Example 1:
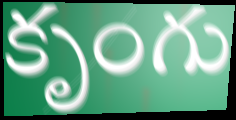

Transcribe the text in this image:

కృంగు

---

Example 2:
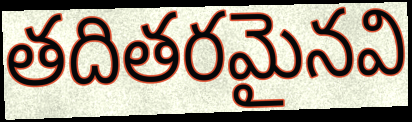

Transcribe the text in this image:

తదితరమైనవి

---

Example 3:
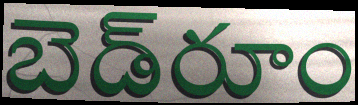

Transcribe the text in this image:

బెడ్‌రూం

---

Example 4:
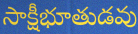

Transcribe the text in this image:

సాక్షీభూతుడవు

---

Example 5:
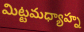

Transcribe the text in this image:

మిట్టమధ్యాహ్న